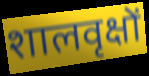
शालवृक्षों